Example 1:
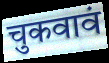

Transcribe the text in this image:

चुकवावं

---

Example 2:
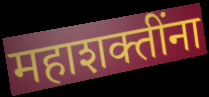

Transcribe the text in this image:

महाशक्तींना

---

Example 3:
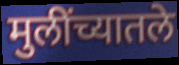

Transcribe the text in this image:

मुलींच्यातले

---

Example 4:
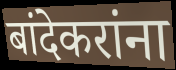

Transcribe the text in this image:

बांदेकरांना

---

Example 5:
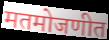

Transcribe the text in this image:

मतमोजणीत